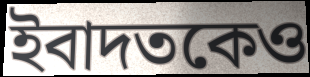
ইবাদতকেও